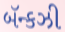
બૅન્કઝી